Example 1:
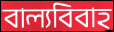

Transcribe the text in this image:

বাল্যবিবাহ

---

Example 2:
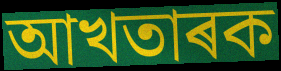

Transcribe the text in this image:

আখতাৰক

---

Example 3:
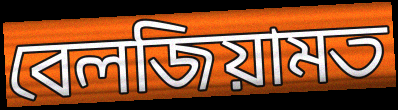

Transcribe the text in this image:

বেলজিয়ামত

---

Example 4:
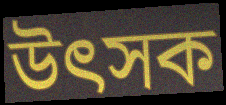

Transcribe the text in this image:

উৎসক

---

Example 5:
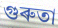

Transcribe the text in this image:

গুৰুতা